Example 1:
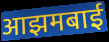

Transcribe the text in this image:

आझमबाई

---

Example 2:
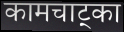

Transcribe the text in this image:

कामचाट्का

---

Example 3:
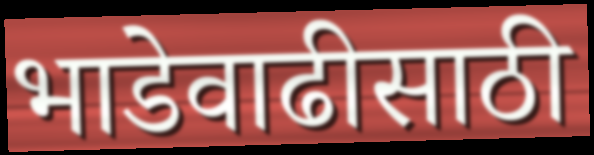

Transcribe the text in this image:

भाडेवाढीसाठी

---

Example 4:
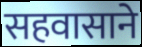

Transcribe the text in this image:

सहवासाने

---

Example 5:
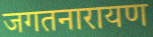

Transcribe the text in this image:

जगतनारायण